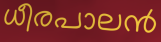
ധീരപാലൻ